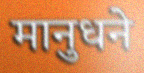
मानुधने